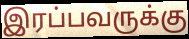
இரப்பவருக்கு